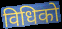
विधिको